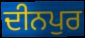
ਦੀਨਪੁਰ